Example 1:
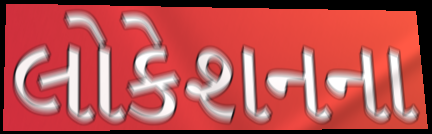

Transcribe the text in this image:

લોકેશનના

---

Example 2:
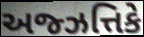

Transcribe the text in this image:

અજ્ઝત્તિકે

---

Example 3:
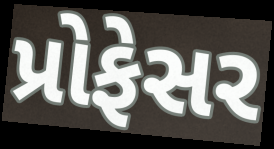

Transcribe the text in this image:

પ્રોફેસર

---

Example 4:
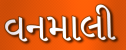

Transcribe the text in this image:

વનમાલી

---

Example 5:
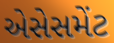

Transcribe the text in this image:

એસેસમેંટ